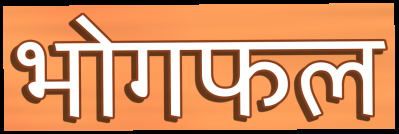
भोगफल